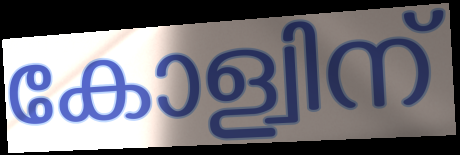
കോള്വിന്